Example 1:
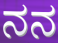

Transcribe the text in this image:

ನನ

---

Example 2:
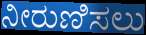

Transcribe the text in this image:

ನೀರುಣಿಸಲು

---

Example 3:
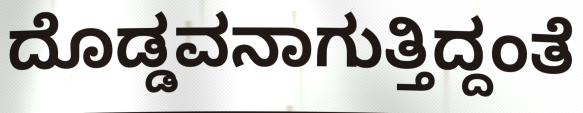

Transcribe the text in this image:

ದೊಡ್ಡವನಾಗುತ್ತಿದ್ದಂತೆ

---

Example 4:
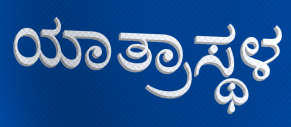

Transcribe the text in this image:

ಯಾತ್ರಾಸ್ಥಳ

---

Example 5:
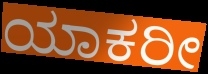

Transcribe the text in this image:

ಯಾಕರೀ